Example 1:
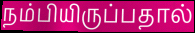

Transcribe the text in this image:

நம்பியிருப்பதால்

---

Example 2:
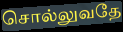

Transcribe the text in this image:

சொல்லுவதே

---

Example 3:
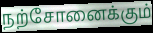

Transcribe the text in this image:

நற்சோனைக்கும்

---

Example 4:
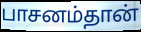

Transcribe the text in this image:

பாசனம்தான்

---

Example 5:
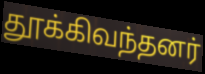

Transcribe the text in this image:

தூக்கிவந்தனர்